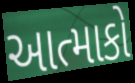
આત્માકો